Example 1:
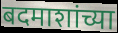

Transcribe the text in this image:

बदमाशांच्या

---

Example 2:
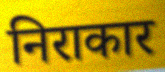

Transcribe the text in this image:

निराकार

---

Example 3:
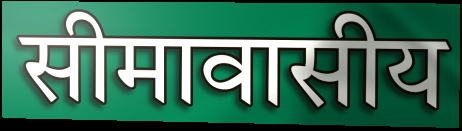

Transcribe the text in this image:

सीमावासीय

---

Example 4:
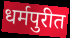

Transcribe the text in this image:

धर्मपुरीत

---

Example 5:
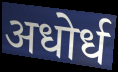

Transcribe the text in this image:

अधोर्ध